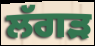
ਲੱਗੜ